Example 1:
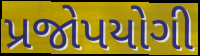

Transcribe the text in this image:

પ્રજોપયોગી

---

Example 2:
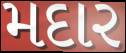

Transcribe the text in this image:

મદાર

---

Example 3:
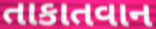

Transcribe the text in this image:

તાકાતવાન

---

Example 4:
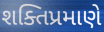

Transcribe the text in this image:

શક્તિપ્રમાણે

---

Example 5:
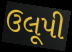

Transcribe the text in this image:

ઉલૂપી